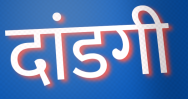
दांडगी